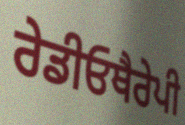
ਰੇਡੀਓਥੈਰੇਪੀ